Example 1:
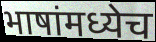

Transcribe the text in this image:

भाषांमध्येच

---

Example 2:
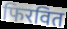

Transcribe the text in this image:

फिरवित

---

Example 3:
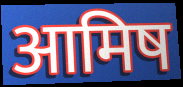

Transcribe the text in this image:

आमिष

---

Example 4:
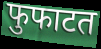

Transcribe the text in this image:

फुफाटत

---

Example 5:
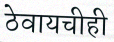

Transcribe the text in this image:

ठेवायचीही